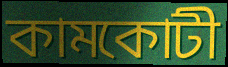
কামকোটী